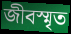
জীবস্মৃত